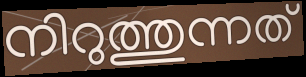
നിറുത്തുന്നത്